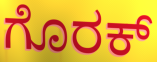
ಗೊರಕ್